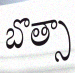
బొత్సా